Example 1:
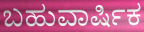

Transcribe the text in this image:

ಬಹುವಾರ್ಷಿಕ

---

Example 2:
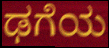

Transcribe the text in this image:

ಢಗೆಯ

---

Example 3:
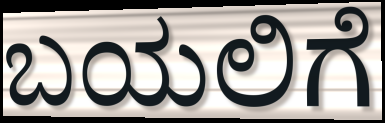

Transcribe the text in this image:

ಬಯಲಿಗೆ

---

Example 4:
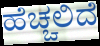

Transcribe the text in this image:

ಹೆಚ್ಚಲಿದೆ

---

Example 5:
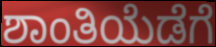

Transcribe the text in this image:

ಶಾಂತಿಯೆಡೆಗೆ